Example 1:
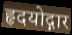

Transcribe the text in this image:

हृदयोद्गार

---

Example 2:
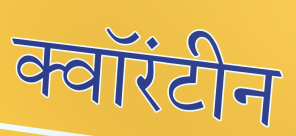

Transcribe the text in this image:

क्वॉरंटीन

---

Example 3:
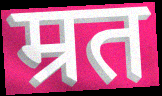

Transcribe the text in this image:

म्रत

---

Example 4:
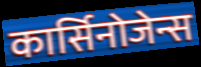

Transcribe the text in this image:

कार्सिनोजेन्स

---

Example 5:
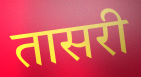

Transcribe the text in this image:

तासरी